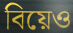
বিয়েও